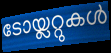
ടോയ്ലറ്റുകൾ